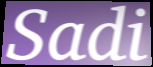
Sadi